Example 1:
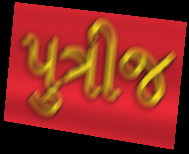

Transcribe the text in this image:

પુત્રીજ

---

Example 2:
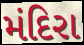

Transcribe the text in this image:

મંદિરા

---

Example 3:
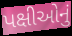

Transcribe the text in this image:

પક્ષીઓનું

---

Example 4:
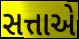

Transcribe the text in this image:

સત્તાએ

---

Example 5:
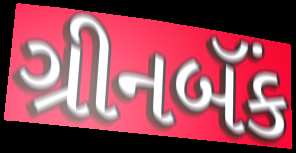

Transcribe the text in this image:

ગ્રીનબૅંક